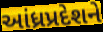
આંધ્રપ્રદેશને